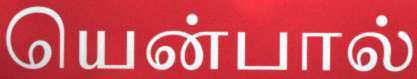
யென்பால்